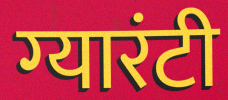
ग्‍यारंटी